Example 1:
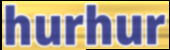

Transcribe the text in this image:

hurhur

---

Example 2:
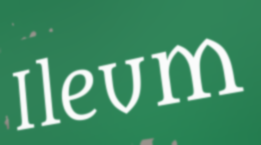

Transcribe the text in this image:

Ileum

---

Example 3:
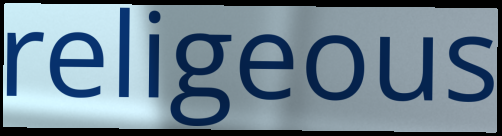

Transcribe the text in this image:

religeous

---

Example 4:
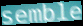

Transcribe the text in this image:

semble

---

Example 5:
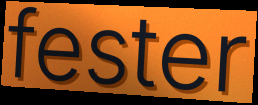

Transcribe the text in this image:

fester